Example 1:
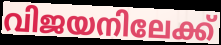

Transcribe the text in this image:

വിജയനിലേക്ക്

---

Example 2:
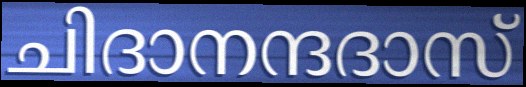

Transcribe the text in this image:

ചിദാനന്ദദാസ്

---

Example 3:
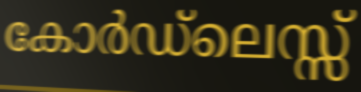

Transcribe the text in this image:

കോർഡ്ലെസ്സ്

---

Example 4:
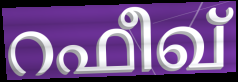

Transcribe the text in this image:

റഫീഖ്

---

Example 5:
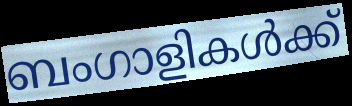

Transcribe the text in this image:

ബംഗാളികൾക്ക്